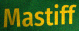
Mastiff